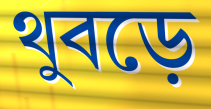
থুবড়ে